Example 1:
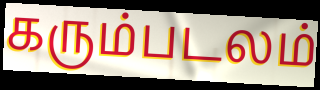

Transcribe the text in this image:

கரும்படலம்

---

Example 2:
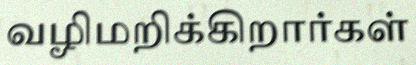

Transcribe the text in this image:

வழிமறிக்கிறார்கள்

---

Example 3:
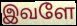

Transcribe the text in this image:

இவளே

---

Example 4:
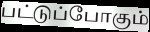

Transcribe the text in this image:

பட்டுப்போகும்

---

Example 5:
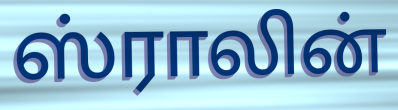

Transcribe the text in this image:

ஸ்ராலின்